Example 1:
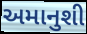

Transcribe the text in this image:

અમાનુશી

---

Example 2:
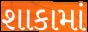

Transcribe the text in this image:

શાકામાં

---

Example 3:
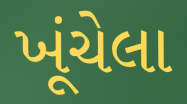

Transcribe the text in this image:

ખૂંચેલા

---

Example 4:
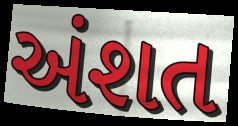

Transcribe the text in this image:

અંશત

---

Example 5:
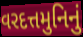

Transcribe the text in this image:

વરદત્તમુનિનું